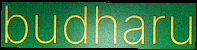
budharu